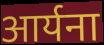
आर्यना